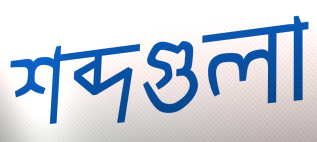
শব্দগুলা